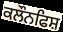
ਕਲੌਨਫਿਸ਼